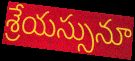
శ్రేయస్సునూ